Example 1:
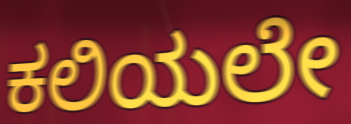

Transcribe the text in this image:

ಕಲಿಯಲೇ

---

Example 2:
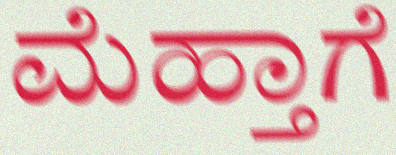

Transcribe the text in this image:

ಮೆಹ್ತಾಗೆ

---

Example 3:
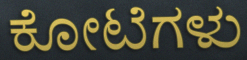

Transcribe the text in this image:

ಕೋಟೆಗಳು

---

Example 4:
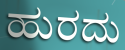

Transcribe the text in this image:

ಹುರದು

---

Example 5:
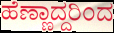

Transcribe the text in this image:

ಹೆಣ್ಣಾದ್ದರಿಂದ